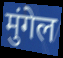
मुंगेल